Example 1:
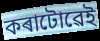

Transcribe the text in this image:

কৰাটোৱেই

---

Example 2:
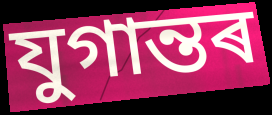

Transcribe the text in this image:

যুগান্তৰ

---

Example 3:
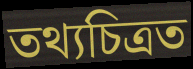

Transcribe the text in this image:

তথ্যচিত্ৰত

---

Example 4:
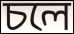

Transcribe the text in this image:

চলে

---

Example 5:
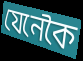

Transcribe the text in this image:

যেনেকৈ